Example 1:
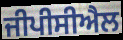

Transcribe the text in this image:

ਜੀਪੀਸੀਐਲ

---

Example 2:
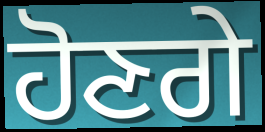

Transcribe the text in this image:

ਹੋਣਗੇ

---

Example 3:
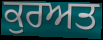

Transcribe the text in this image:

ਕੁਰਅਤ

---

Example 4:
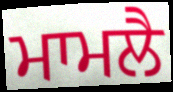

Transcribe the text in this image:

ਮਾਮਲੈ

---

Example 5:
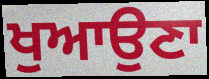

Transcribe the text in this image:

ਖੁਆਉਣਾ